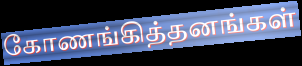
கோணங்கித்தனங்கள்